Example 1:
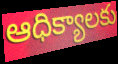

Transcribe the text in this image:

ఆధిక్యాలకు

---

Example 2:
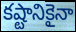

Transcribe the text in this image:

కష్టానికైనా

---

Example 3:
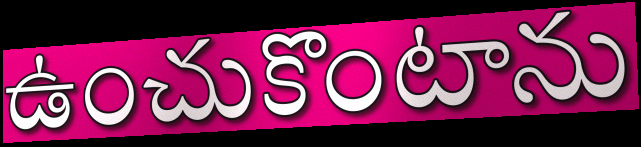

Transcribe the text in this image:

ఉంచుకొంటాను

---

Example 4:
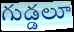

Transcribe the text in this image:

గుడ్డలూ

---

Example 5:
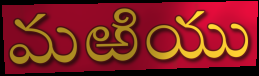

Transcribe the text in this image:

మఱియు